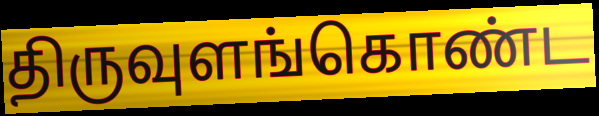
திருவுளங்கொண்ட